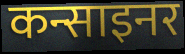
कन्साइनर